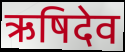
ऋषिदेव